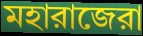
মহারাজেরা